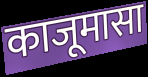
काजूमासा